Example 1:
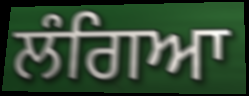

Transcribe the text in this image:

ਲੰਗਿਆ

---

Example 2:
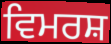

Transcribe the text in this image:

ਵਿਮਰਸ਼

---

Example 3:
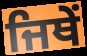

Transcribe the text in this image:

ਜਿਥੇਂ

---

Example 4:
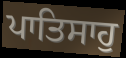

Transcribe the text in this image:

ਪਾਤਿਸਾਹੁ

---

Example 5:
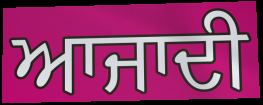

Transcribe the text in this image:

ਆਜਾਦੀ